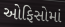
ઓફિસોમાં